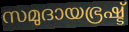
സമുദായഭ്രഷ്ട്